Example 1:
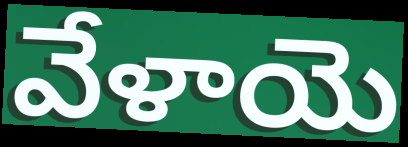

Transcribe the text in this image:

వేళాయె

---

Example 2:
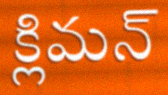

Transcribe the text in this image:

క్లిమన్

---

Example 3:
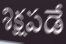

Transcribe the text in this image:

శిక్షపడే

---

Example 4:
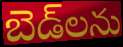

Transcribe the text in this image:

బెడ్‌లను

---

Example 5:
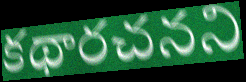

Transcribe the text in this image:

కథారచనని